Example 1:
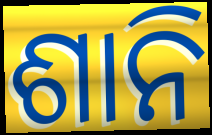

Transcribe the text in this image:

ଶାନି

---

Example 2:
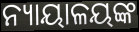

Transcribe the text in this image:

ନ୍ୟାୟାଳୟଙ୍କ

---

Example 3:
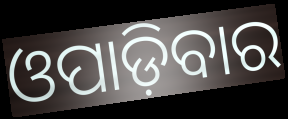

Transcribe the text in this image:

ଓପାଡ଼ିବାର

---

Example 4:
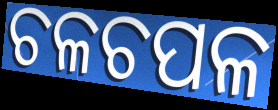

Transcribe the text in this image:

ଚଳଚପଳ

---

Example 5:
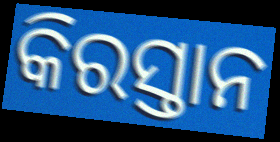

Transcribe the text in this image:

କିରସ୍ତାନ